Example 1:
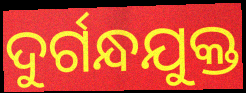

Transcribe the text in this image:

ଦୁର୍ଗନ୍ଧଯୁକ୍ତ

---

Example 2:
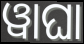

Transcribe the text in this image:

ୱାଘା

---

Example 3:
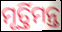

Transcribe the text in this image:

ମୂର୍ତ୍ତିମନ୍ତ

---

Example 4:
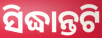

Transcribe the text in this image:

ସିଦ୍ଧାନ୍ତଟି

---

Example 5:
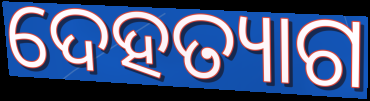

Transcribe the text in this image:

ଦେହତ୍ୟାଗ